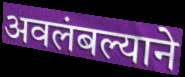
अवलंबल्याने